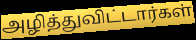
அழித்துவிட்டார்கள்